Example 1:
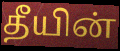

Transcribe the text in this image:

தீயின்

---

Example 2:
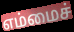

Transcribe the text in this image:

எம்மைச்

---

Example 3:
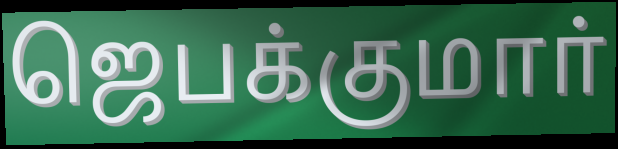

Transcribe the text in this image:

ஜெபக்குமார்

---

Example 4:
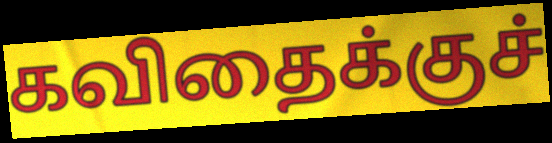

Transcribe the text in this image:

கவிதைக்குச்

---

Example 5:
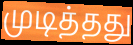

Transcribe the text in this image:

முடித்தது